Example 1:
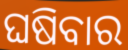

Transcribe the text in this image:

ଘଷିବାର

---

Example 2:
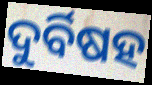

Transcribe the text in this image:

ଦୁର୍ବିଷହ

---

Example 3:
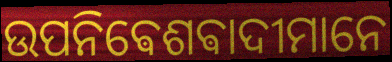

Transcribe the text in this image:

ଉପନିଵେଶଵାଦୀମାନେ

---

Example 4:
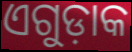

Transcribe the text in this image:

ଏଗୁଡ଼ାକ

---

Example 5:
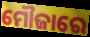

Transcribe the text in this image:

ମୌଜାରେ